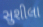
સુશીલા